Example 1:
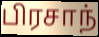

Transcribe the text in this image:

பிரசாந்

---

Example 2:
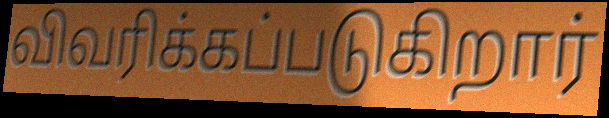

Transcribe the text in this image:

விவரிக்கப்படுகிறார்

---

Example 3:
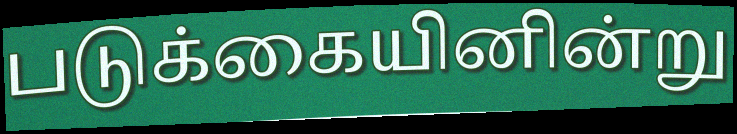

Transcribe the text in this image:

படுக்கையினின்று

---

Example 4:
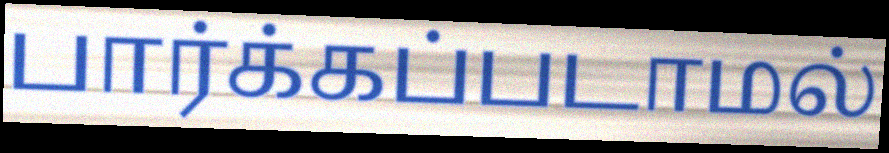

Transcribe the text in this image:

பார்க்கப்படாமல்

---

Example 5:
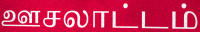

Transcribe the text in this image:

ஊசலாட்டம்